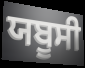
ਯਬੂਸੀ